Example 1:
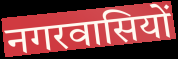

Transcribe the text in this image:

नगरवासियों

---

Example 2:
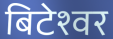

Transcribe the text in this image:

बिटेश्वर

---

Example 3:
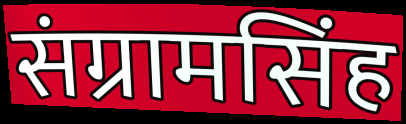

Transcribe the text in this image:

संग्रामसिंह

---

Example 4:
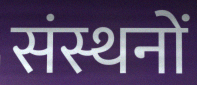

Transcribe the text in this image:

संस्थनों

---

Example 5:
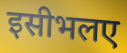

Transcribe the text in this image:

इसीभलए